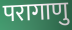
परागाणु